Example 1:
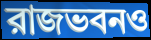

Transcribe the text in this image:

রাজভবনও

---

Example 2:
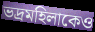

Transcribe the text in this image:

ভদ্রমহিলাকেও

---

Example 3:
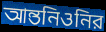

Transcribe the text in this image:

আন্তনিওনির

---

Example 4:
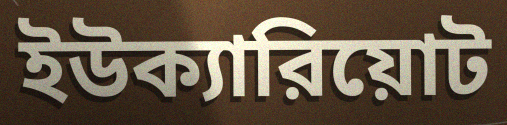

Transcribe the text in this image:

ইউক্যারিয়োট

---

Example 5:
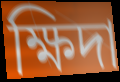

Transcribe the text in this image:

ক্ষিদা